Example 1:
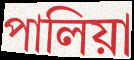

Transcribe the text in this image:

পালিয়া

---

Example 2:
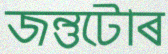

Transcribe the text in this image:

জন্তুটোৰ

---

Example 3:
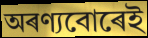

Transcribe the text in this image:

অৰণ্যবোৰেই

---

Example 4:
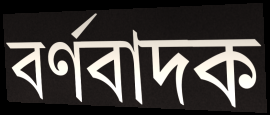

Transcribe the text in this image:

বৰ্ণবাদক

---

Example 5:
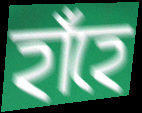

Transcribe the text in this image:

হাঁহে